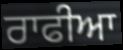
ਰਾਫੀਆ